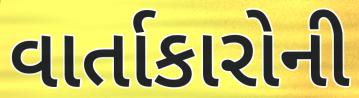
વાર્તાકારોની